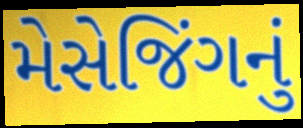
મેસેજિંગનું